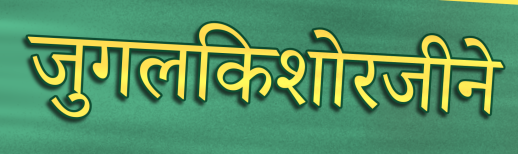
जुगलकिशोरजीने